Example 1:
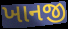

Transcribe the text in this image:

ખાનજી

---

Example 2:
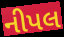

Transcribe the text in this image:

નીપલ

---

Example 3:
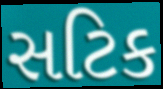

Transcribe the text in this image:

સટિક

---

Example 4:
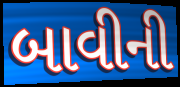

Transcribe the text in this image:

બાવીની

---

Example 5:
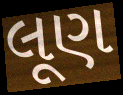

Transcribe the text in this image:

લૂણ